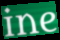
ine